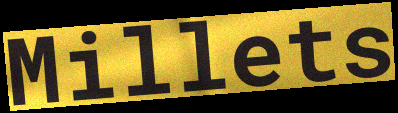
Millets